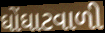
ઘોંઘાટવાળી